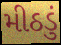
મીઠડું